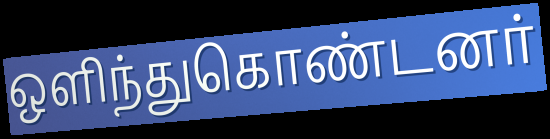
ஒளிந்துகொண்டனர்